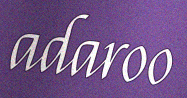
adaroo